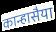
कान्हासैया